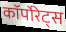
कॉर्पोरेट्स